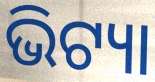
ଭିଟ୍ୟା